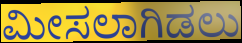
ಮೀಸಲಾಗಿಡಲು